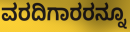
ವರದಿಗಾರರನ್ನೂ